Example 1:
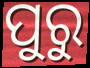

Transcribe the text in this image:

ପୁରୁ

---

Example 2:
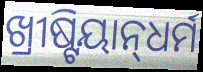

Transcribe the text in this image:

ଖ୍ରୀଷ୍ଟିୟାନ୍‌ଧର୍ମ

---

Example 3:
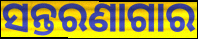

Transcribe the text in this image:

ସନ୍ତରଣାଗାର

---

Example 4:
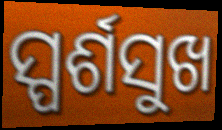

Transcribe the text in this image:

ସ୍ପର୍ଶସୁଖ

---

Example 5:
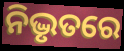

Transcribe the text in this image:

ନିଦ୍ଭୃତରେ